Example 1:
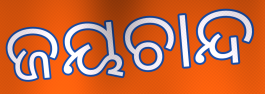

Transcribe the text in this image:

ଜୟଚାନ୍ଦ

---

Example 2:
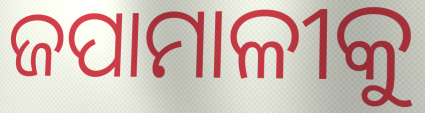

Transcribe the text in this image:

ଜପାମାଳୀକୁ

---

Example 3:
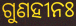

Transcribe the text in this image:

ଗୁଣହୀନଃ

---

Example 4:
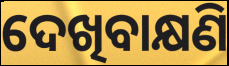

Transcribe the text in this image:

ଦେଖିବାକ୍ଷଣି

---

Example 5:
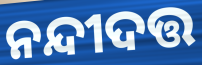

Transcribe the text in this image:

ନନ୍ଦୀଦତ୍ତ